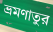
ভ্রমণাতুর